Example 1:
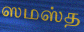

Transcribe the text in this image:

ஸமஸ்த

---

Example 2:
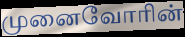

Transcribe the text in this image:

முனைவோரின்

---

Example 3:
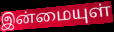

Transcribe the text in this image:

இன்மையுள்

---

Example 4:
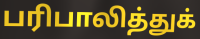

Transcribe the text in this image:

பரிபாலித்துக்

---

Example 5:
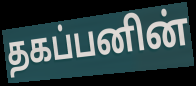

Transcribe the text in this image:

தகப்பனின்